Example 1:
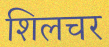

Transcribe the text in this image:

शिलचर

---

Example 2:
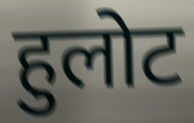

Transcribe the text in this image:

हुलोट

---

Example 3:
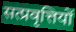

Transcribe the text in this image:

सत्प्रवृत्तियों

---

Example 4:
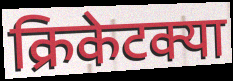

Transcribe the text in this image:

क्रिकेटक्या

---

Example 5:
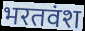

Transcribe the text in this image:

भरतवंश